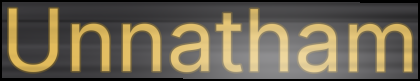
Unnatham